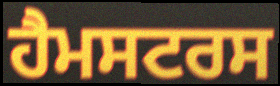
ਹੈਮਸਟਰਸ